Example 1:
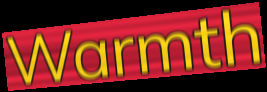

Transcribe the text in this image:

Warmth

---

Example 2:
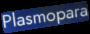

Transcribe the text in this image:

Plasmopara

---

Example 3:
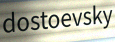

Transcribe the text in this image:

dostoevsky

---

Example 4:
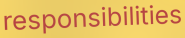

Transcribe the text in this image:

responsibilities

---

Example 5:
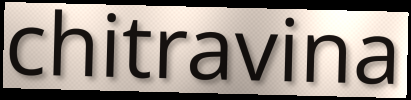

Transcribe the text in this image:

chitravina